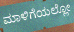
ಮಾಳಿಗೆಯಲ್ಲೋ